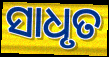
ସାଧୃତ